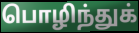
பொழிந்துக்